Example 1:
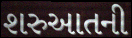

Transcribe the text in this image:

શરુઆતની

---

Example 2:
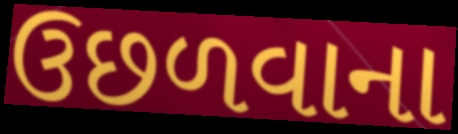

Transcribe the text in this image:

ઉછળવાના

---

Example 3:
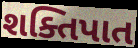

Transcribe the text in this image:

શક્તિપાત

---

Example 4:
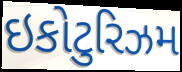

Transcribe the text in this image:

ઇકોટુરિઝમ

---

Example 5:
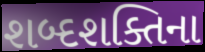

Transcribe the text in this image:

શબ્દશક્તિના